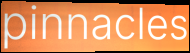
pinnacles